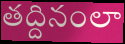
తద్దినంలా